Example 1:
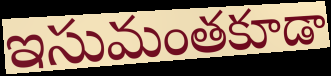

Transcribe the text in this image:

ఇసుమంతకూడా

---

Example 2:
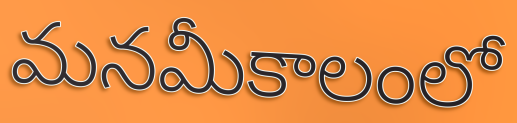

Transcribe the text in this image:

మనమీకాలంలో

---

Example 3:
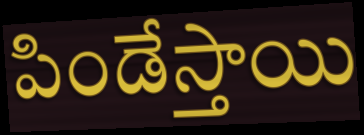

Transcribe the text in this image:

పిండేస్తాయి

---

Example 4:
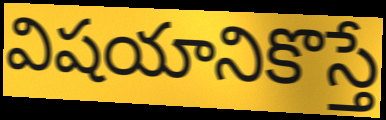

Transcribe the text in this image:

విషయానికొస్తే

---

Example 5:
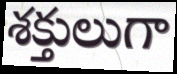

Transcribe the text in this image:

శక్తులుగా